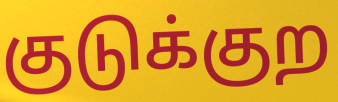
குடுக்குற